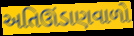
અતિઊંડાણવાળો